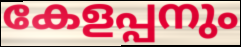
കേളപ്പനും